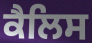
ਕੈਲਿਸ